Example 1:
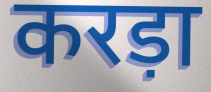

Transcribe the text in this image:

करड़ा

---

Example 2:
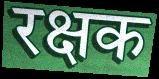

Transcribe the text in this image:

रक्षक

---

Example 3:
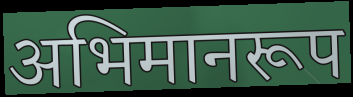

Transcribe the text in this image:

अभिमानरूप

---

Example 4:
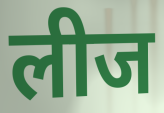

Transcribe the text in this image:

लीज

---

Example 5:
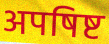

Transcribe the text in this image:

अपषिष्ट